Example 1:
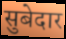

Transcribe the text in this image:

सुबेदार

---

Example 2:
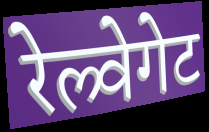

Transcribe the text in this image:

रेल्वेगेट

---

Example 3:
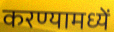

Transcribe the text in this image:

करण्यामध्यें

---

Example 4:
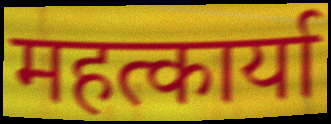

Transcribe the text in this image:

महत्कार्या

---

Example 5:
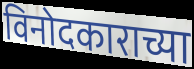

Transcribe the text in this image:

विनोदकाराच्या